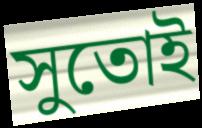
সুতোই